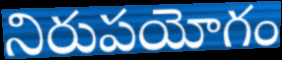
నిరుపయోగం